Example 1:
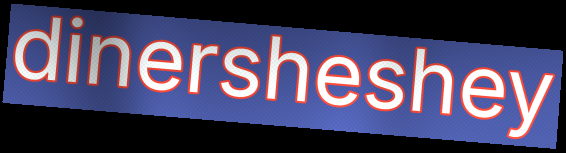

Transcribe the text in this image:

dinersheshey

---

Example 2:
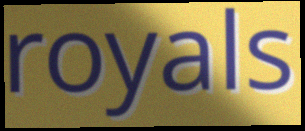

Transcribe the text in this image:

royals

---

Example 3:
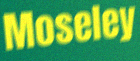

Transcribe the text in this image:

Moseley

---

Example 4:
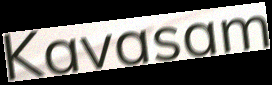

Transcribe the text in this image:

Kavasam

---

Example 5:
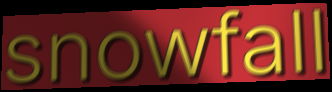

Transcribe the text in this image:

snowfall